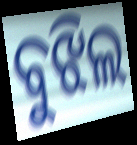
ବୁଝିଲ